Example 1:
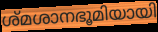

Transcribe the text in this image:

ശ്മശാനഭൂമിയായി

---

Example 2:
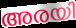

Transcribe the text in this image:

അരയി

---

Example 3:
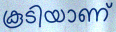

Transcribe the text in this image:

കൂടിയാണ്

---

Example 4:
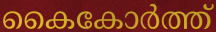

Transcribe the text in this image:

കൈകോർത്ത്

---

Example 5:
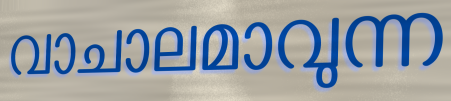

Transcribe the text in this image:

വാചാലമാവുന്ന